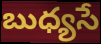
బుధ్యసే